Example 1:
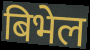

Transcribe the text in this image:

बिभेल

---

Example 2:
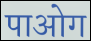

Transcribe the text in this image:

पाओग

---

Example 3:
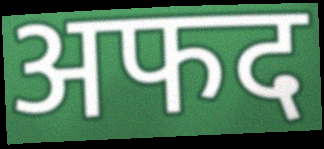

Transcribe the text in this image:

अफद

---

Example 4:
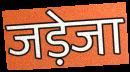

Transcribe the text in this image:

जड़ेजा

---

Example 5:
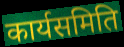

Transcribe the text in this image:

कार्यसमिति